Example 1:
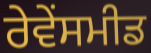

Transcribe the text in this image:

ਰੇਵੇਂਸਮੀਡ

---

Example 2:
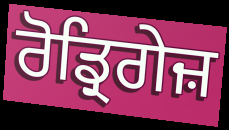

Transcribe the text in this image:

ਰੋਡ੍ਰਿਗੇਜ਼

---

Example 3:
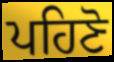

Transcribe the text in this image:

ਪਹਿਣੋ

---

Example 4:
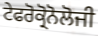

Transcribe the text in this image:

ਟੇਫਰੋਕ੍ਰੋਨੋਲੋਜੀ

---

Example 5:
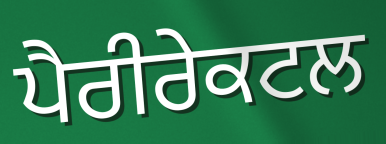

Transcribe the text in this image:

ਪੈਰੀਰੇਕਟਲ